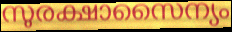
സുരക്ഷാസൈന്യം